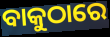
ବାକୁଠାରେ